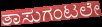
ತಾಸುಗಂಟಲೇ